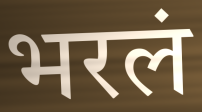
भरलं